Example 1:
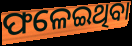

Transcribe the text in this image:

ଫଳେଇଥିବା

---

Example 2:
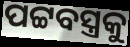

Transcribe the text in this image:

ପଟ୍ଟବସ୍ତ୍ରକୁ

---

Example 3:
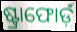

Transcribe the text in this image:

ଷ୍ଟ୍ରାଫୋର୍ଡ଼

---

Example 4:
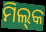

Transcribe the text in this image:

ମିଲ୍‌କ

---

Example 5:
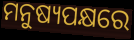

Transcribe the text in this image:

ମନୁଷ୍ୟପକ୍ଷରେ